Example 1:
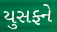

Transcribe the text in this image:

યુસફ્ને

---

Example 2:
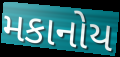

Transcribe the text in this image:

મકાનોય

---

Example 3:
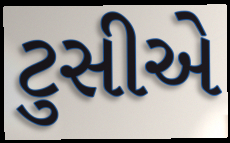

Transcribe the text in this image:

ટુસીએ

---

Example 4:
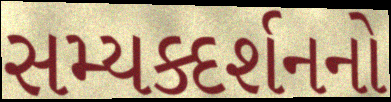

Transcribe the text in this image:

સમ્યક્દર્શનનો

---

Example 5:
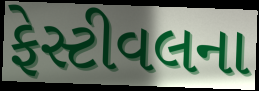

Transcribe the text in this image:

ફેસ્ટીવલના